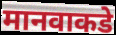
मानवाकडे